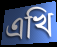
এখি